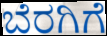
ಬೆರಗಿಗೆ